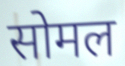
सोमल